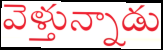
వెళ్తున్నాడు